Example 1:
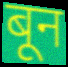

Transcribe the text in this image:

बून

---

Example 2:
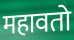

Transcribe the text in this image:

महावतो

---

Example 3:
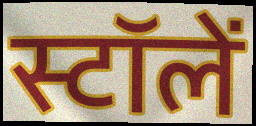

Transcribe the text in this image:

स्टॉलें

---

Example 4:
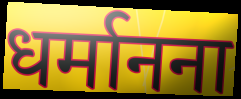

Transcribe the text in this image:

धर्मानना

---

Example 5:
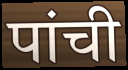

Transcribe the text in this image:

पांची